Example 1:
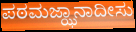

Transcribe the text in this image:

ಪಠಮಜ್ಝಾನಾದೀಸು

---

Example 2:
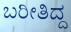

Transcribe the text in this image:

ಬರೀತಿದ್ದ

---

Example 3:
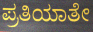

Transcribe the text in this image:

ಪ್ರತಿಯಾತೇ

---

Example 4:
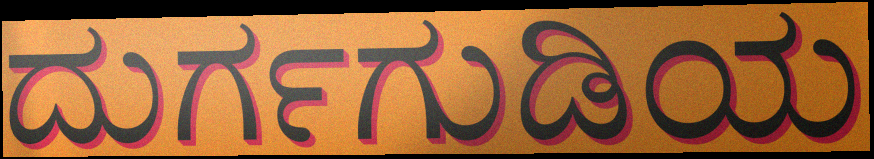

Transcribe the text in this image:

ದುರ್ಗಗುಡಿಯ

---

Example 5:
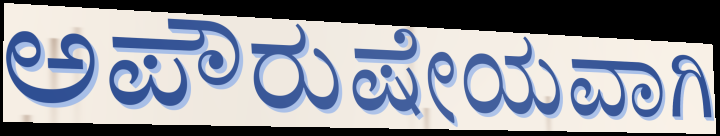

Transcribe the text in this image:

ಅಪೌರುಷೇಯವಾಗಿ